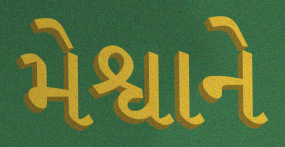
મેશ્વાને